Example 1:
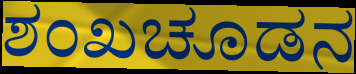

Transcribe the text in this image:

ಶಂಖಚೂಡನ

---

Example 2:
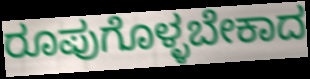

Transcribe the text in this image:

ರೂಪುಗೊಳ್ಳಬೇಕಾದ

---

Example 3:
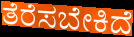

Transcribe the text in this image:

ತೆರೆಸಬೇಕಿದೆ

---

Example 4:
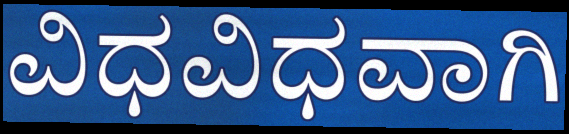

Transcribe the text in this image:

ವಿಧವಿಧವಾಗಿ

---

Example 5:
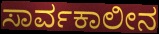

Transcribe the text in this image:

ಸಾರ್ವಕಾಲೀನ